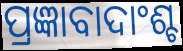
ପ୍ରଜ୍ଞାବାଦାଂଶ୍ଚ